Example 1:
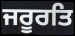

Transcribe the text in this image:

ਜਰੂਰਤਿ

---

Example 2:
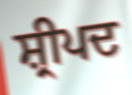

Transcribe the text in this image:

ਸ਼੍ਰੀਪਦ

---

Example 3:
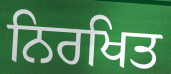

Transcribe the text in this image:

ਨਿਰਖਿਤ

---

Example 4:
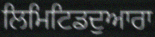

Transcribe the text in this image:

ਲਿਮਿਟਿਡਦੁਆਰਾ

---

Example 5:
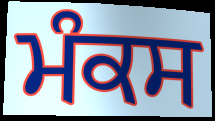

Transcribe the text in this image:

ਮੰਕਸ